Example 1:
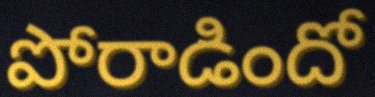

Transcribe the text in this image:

పోరాడిందో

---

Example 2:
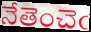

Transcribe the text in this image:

నేతెంచెఁ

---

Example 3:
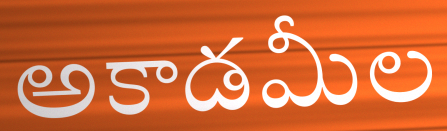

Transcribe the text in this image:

అకాడమీల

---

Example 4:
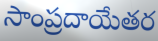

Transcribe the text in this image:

సాంప్రదాయేతర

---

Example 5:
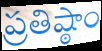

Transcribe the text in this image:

ప్రతిష్ఠాం